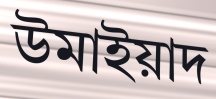
উমাইয়াদ